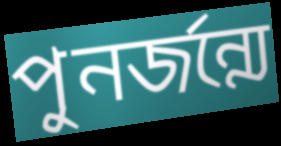
পুনর্জন্মে